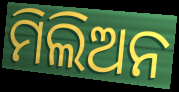
ମିଲିଅନ